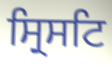
ਸ੍ਰਿਸਟਿ